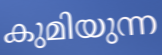
കുമിയുന്ന